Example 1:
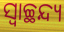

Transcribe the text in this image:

ସ୍ୱାଚ୍ଛନ୍ଦ୍ୟ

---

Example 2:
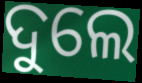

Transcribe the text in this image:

ଦୁଲେ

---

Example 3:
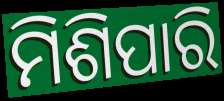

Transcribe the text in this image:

ମିଶିପାରି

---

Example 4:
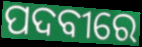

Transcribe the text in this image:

ପଦବୀରେ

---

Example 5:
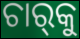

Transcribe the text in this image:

ଚାର୍‌କୁ